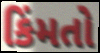
કિંમતો